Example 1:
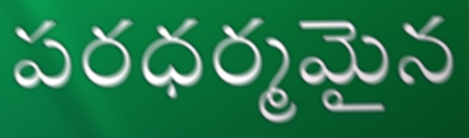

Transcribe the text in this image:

పరధర్మమైన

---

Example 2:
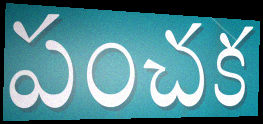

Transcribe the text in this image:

పంచక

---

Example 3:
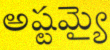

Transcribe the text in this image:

అష్టమ్యై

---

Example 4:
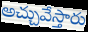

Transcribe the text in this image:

అచ్చువేస్తారు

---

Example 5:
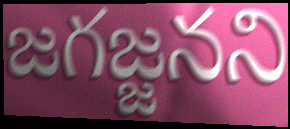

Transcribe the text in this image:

జగజ్జనని